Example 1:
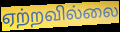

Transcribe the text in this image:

ஏற்றவில்லை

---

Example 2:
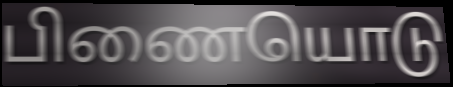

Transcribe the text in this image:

பிணையொடு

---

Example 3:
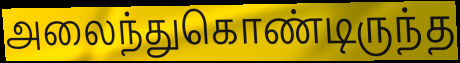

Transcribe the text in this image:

அலைந்துகொண்டிருந்த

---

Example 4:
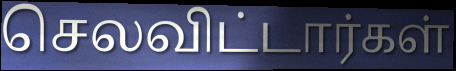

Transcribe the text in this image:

செலவிட்டார்கள்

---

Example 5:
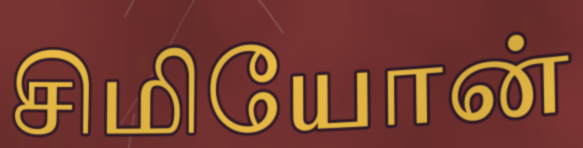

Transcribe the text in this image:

சிமியோன்